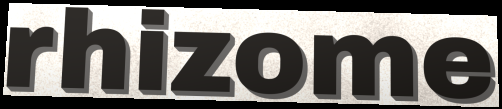
rhizome